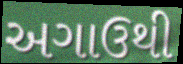
અગાઉથી